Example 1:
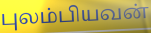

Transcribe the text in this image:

புலம்பியவன்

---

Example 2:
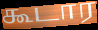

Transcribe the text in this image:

கூடார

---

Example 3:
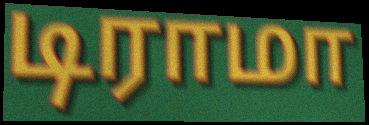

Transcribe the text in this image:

டிராமா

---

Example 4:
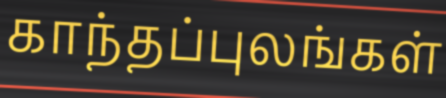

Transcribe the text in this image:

காந்தப்புலங்கள்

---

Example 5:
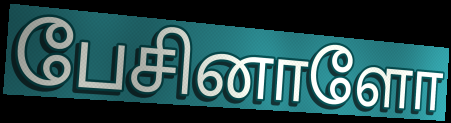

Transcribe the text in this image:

பேசினாளோ